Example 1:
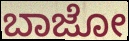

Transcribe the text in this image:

ಬಾಜೋ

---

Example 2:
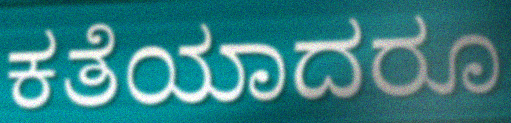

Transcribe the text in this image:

ಕತೆಯಾದರೂ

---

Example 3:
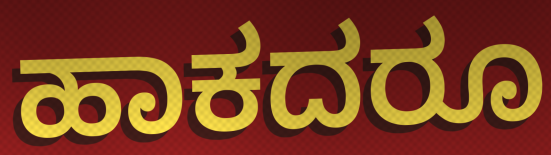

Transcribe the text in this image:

ಹಾಕದರೂ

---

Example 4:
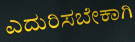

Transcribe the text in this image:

ಎದುರಿಸಬೇಕಾಗಿ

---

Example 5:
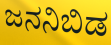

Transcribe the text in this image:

ಜನನಿಬಿಡ